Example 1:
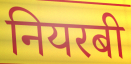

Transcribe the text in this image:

नियरबी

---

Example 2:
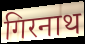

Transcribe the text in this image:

गिरनाथ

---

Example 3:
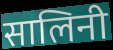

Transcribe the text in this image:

सालिनी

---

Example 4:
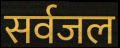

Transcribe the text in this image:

सर्वजल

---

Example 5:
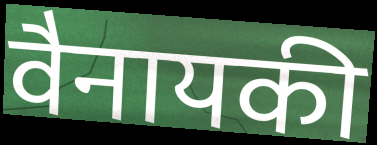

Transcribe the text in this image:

वैनायकी